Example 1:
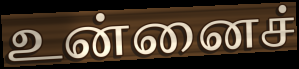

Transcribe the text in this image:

உன்னைச்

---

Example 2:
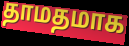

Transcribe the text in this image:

தாமதமாக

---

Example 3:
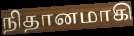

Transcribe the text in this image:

நிதானமாகி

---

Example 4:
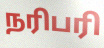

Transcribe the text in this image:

நரிபரி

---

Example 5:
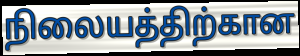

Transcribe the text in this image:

நிலையத்திற்கான